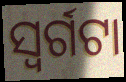
ସ୍ୱର୍ଗଟା